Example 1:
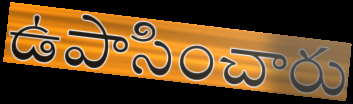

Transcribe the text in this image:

ఉపాసించారు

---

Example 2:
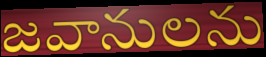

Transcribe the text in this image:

జవానులను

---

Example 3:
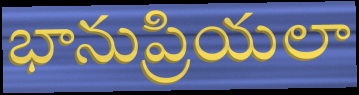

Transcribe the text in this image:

భానుప్రియలా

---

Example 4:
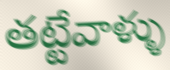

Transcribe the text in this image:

తట్టేవాళ్ళు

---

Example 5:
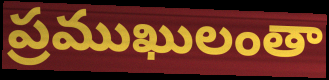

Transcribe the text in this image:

ప్రముఖులంతా